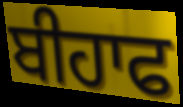
ਬੀਹਾਫ